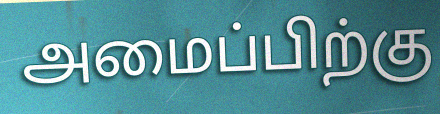
அமைப்பிற்கு